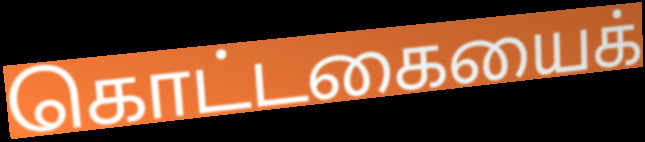
கொட்டகையைக்